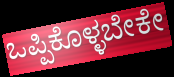
ಒಪ್ಪಿಕೊಳ್ಳಬೇಕೇ